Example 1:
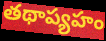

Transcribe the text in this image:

తథాప్యహం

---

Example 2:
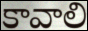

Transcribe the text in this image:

కావాలి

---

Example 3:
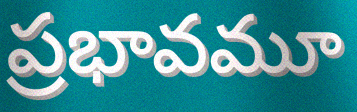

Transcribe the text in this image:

ప్రభావమూ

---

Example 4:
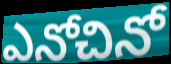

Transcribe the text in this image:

ఎనోచినో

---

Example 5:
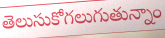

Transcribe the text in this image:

తెలుసుకోగలుగుతున్నాం